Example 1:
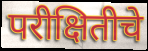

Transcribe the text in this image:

परीक्षितीचे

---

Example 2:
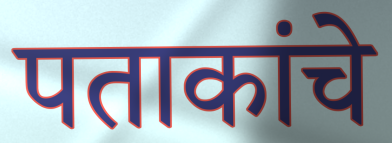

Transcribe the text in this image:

पताकांचे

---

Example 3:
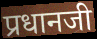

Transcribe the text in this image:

प्रधानजी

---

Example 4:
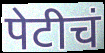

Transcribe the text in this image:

पेटीचं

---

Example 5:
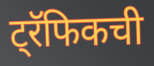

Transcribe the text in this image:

ट्रॅफिकची